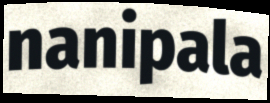
nanipala